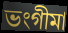
ভংগীমা